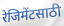
रेजिमेंटसाठी